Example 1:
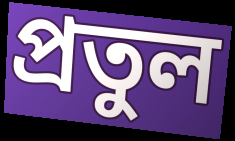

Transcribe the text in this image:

প্রতুল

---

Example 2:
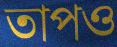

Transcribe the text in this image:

তাপও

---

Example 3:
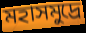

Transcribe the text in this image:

মহাসমুদ্রে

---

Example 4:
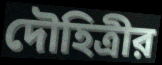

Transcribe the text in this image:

দৌহিত্রীর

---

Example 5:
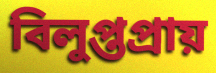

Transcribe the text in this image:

বিলুপ্তপ্রায়